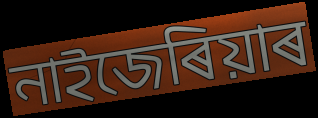
নাইজেৰিয়াৰ